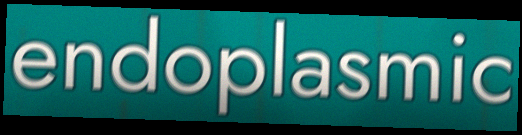
endoplasmic